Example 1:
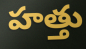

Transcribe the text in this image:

హత్తు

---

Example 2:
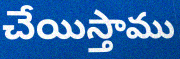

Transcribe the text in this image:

చేయిస్తాము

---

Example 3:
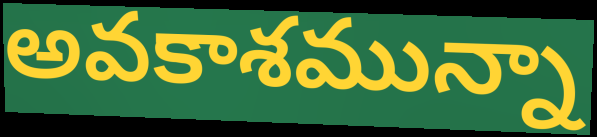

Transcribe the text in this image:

అవకాశమున్నా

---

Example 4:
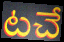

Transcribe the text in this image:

టచే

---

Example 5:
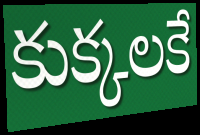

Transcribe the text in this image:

కుక్కలకే